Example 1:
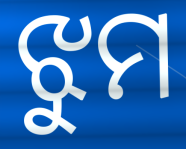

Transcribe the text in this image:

ଝୁମ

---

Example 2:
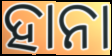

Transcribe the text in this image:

ହାନା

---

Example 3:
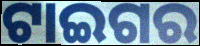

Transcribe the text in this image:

ଟାଇଗର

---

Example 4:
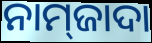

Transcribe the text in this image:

ନାମ୍‌ଜାଦା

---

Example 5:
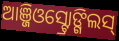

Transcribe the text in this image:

ଆଞ୍ଜିଓସ୍ଟ୍ରୋଙ୍ଗିଲସ୍